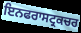
ਇਨਫਰਾਸਟ੍ਰਕਚਰ